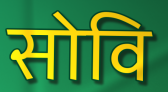
सोवि